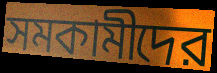
সমকামীদের